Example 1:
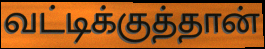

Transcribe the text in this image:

வட்டிக்குத்தான்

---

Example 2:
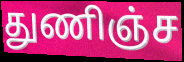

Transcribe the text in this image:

துணிஞ்ச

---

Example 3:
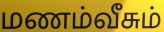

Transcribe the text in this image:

மணம்வீசும்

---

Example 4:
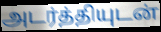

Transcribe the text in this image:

அடர்த்தியுடன்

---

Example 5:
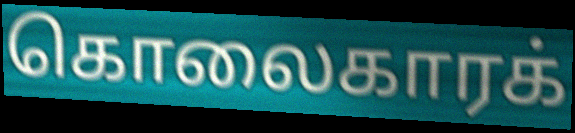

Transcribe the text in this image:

கொலைகாரக்